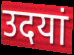
उदयां